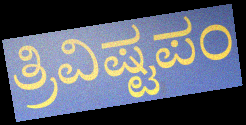
ತ್ರಿವಿಷ್ಟಪಂ